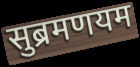
सुब्रमणयम